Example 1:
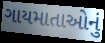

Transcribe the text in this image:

ગાયમાતાઓનું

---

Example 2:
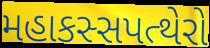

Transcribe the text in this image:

મહાકસ્સપત્થેરો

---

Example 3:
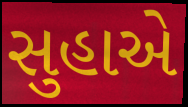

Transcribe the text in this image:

સુહાએ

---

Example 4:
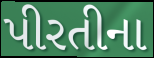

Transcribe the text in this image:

પીરતીના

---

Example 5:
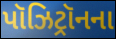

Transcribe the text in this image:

પૉઝિટ્રૉનના